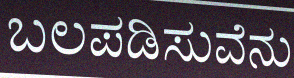
ಬಲಪಡಿಸುವೆನು